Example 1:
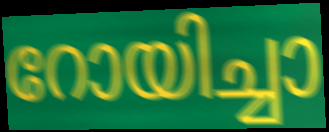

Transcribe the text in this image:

റോയിച്ചാ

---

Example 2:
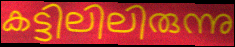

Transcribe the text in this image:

കട്ടിലിലിരുന്നു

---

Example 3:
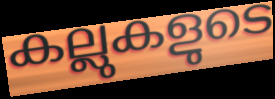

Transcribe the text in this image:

കല്ലുകളുടെ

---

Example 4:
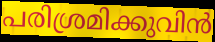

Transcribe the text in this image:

പരിശ്രമിക്കുവിൻ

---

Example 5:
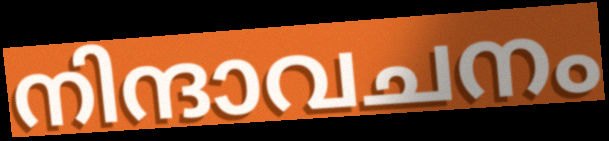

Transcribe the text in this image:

നിന്ദാവചനം